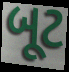
બૂટ